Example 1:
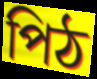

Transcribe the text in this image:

পিঠ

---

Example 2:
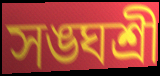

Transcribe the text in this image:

সঙ্ঘশ্রী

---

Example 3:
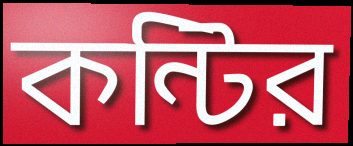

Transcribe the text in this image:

কন্টির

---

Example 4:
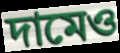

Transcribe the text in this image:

দামেও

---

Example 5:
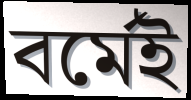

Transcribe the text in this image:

বর্মেই